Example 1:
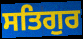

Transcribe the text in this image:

ਸਤਿਗੁਰ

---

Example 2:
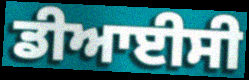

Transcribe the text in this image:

ਡੀਆਈਸੀ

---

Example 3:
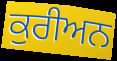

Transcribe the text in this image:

ਕੁਰੀਅਨ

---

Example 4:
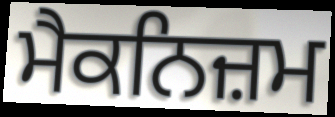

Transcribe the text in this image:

ਮੈਕਨਿਜ਼ਮ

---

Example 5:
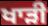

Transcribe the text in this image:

ਖਾੜੀ